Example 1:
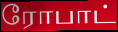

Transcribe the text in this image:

ரோபாட்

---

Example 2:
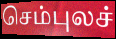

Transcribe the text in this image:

செம்புலச்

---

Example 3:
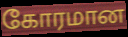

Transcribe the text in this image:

கோரமான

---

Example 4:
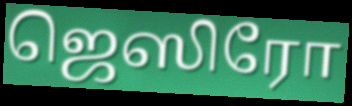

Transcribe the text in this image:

ஜெஸிரோ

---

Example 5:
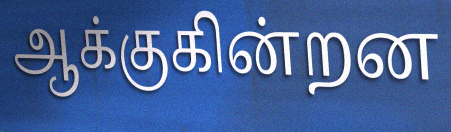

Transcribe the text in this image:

ஆக்குகின்றன